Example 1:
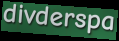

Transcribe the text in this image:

divderspa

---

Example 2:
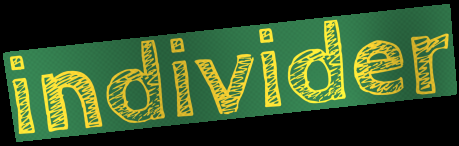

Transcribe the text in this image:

individer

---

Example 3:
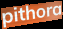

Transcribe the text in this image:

pithora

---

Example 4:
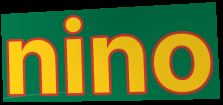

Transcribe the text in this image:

nino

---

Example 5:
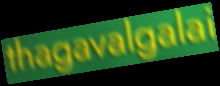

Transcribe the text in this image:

thagavalgalai